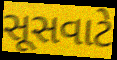
સૂસવાટે